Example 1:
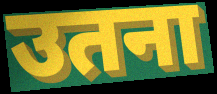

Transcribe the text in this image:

उतना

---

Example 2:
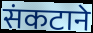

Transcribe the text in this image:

संकटाने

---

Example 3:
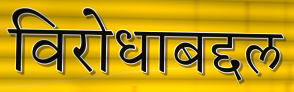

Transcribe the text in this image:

विरोधाबद्दल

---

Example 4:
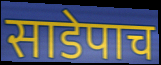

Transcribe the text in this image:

साडेपाच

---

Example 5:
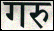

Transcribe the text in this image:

गरु